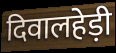
दिवालहेड़ी